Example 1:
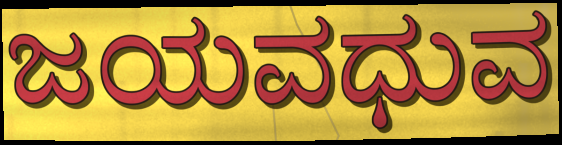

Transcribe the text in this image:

ಜಯವಧುವ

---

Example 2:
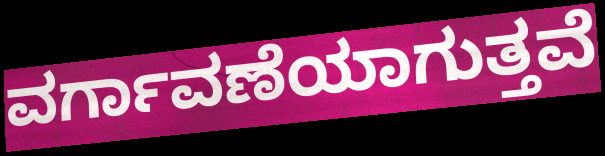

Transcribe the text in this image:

ವರ್ಗಾವಣೆಯಾಗುತ್ತವೆ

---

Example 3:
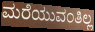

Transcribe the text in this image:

ಮರೆಯುವಂತಿಲ್ಲ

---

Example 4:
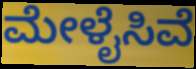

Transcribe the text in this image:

ಮೇಳೈಸಿವೆ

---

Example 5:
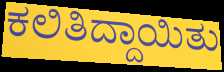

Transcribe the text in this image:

ಕಲಿತಿದ್ದಾಯಿತು